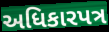
અધિકારપત્ર